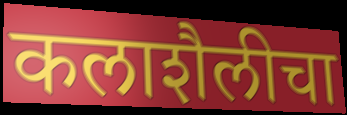
कलाशैलीचा